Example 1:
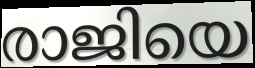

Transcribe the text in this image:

രാജിയെ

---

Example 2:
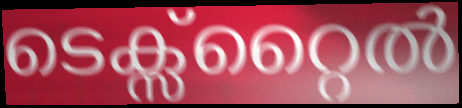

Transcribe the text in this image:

ടെക്സ്റ്റൈൽ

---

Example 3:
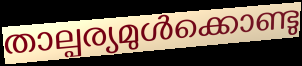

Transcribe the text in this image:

താല്പര്യമുൾക്കൊണ്ടു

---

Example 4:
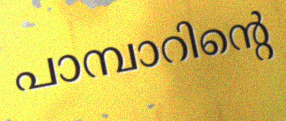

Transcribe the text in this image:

പാമ്പാറിന്റെ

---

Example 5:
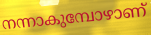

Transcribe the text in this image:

നന്നാകുമ്പോഴാണ്